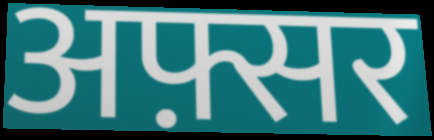
अफ़्सर